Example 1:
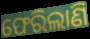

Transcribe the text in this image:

ଫେରିଲାଣି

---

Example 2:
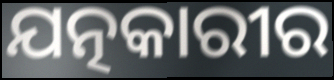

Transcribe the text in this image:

ଯତ୍ନକାରୀର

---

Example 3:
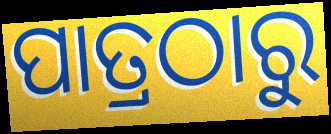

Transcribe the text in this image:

ପାତ୍ରଠାରୁ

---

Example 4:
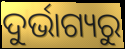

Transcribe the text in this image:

ଦୁର୍ଭାଗ୍ୟରୁ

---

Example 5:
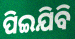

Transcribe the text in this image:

ପିଇଯିବି